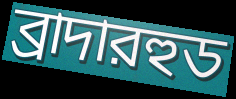
ব্রাদারহুড